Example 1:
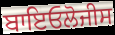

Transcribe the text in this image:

ਬਾਇਓਲੋਜੀਸ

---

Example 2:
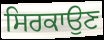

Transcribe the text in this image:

ਸਿਰਕਾਉਣ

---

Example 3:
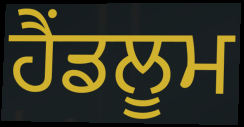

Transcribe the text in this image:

ਹੈਂਡਲੂਮ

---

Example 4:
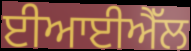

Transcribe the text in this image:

ਈਆਈਐੱਲ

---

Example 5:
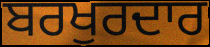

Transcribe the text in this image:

ਬਰਖੁਰਦਾਰ